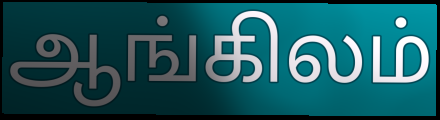
ஆங்கிலம்